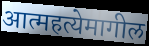
आत्महत्येमागील